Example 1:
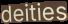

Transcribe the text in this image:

deities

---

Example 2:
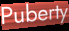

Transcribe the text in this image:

Puberty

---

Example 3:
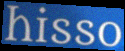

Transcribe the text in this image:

hisso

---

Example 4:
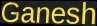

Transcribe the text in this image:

Ganesh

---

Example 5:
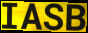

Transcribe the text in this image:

IASB